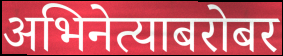
अभिनेत्याबरोबर